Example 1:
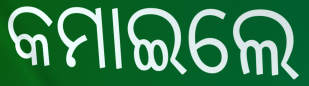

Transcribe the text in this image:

କମାଇଲେ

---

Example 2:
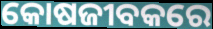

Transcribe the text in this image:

କୋଷଜୀବକରେ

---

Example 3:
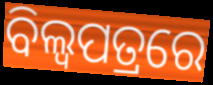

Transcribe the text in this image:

ବିଲ୍ଵପତ୍ରରେ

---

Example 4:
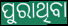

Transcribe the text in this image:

ପୁରାଥିବା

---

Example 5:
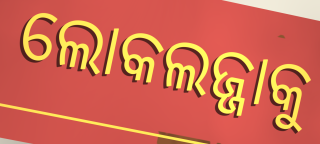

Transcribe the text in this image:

ଲୋକଲଜ୍ଜାକୁ